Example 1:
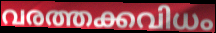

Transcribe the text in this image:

വരത്തക്കവിധം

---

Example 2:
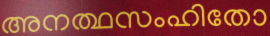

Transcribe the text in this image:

അനത്ഥസംഹിതോ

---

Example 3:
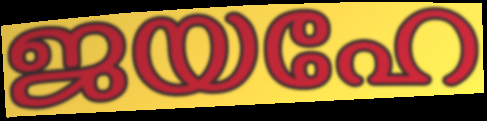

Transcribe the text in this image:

ജയഹേ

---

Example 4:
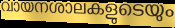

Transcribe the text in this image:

വായനശാലകളുടെയും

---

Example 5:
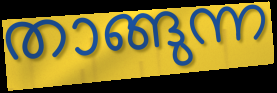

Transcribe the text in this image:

താങ്ങുന്ന